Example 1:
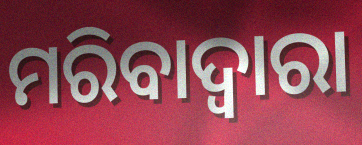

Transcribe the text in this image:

ମରିବାଦ୍ୱାରା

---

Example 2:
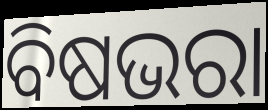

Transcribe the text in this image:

ବିଷଭରା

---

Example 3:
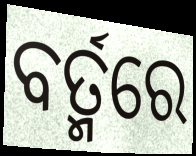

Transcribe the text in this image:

ବର୍ତ୍ମରେ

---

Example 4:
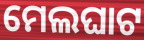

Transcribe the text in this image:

ମେଲଘାଟ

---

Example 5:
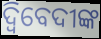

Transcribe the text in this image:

ଦ୍ବିବେଦୀଙ୍କ